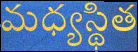
మధ్యస్థిత